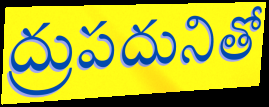
ద్రుపదునితో